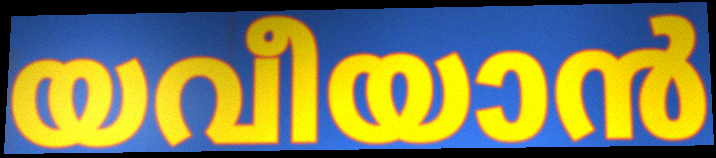
യവീയാൻ